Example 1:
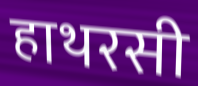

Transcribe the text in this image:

हाथरसी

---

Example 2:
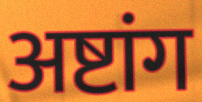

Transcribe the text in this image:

अष्टांग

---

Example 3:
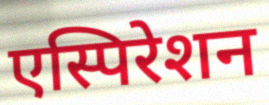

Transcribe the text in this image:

एस्पिरेशन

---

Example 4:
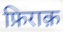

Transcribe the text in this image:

फ़िराक़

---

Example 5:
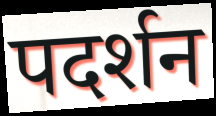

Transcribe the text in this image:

पदर्शन